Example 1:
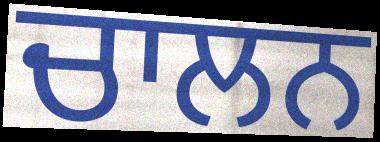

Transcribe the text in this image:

ਚਾਲਨ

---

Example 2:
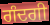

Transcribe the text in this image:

ਗੰਦਗੀ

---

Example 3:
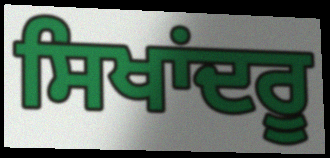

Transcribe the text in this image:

ਸਿਖਾਂਦਰੂ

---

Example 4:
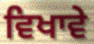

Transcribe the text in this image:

ਵਿਖਾਵੇ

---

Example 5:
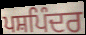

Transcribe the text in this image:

ਪਸ਼ਪਿੰਦਰ